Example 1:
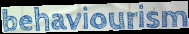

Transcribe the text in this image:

behaviourism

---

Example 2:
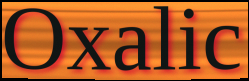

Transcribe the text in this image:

Oxalic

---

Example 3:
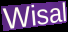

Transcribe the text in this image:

Wisal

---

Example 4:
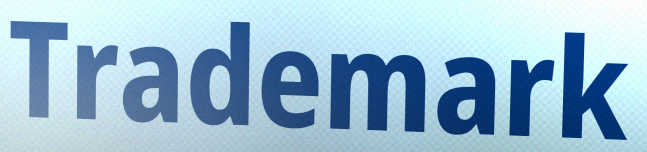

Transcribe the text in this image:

Trademark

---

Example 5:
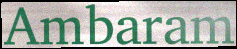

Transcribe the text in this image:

Ambaram